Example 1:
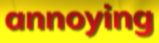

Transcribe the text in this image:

annoying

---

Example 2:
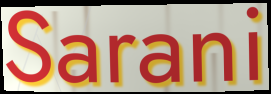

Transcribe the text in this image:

Sarani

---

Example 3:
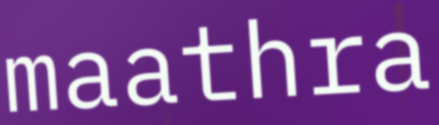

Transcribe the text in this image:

maathra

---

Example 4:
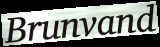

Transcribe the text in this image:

Brunvand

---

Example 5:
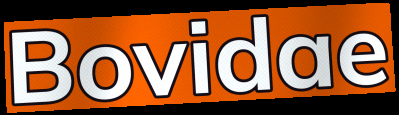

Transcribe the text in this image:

Bovidae